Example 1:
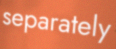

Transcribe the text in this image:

separately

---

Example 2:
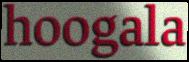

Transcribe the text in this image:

hoogala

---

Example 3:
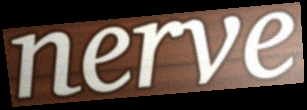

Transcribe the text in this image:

nerve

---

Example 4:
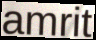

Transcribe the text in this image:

amrit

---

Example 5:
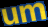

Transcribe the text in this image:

um